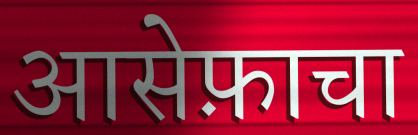
आसेफ़ाचा